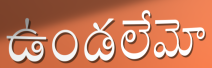
ఉండలేమో